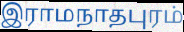
இராமநாதபுரம்